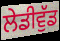
ਲੇਡੀਵੁੱਡ